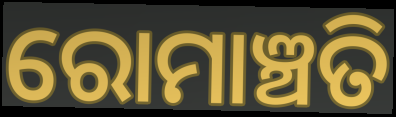
ରୋମାଞ୍ଚତି